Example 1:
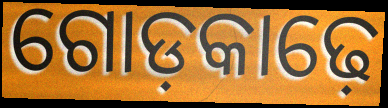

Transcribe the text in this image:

ଗୋଡ଼କାଢ଼େ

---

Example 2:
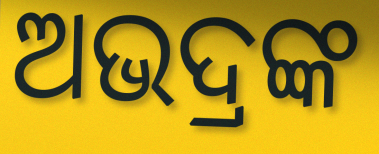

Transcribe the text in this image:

ଅଭଦ୍ରଙ୍କ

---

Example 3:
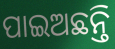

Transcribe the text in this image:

ପାଇଅଛନ୍ତି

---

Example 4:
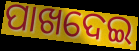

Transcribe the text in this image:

ପାଖଦେଇ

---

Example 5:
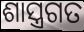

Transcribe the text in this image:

ଶାସ୍ତ୍ରଗତ